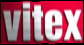
vitex